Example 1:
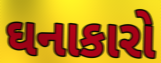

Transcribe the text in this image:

ઘનાકારો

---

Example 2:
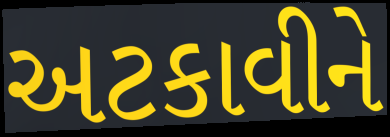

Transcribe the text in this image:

અટકાવીને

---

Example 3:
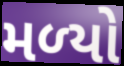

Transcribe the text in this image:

મળ્‍યો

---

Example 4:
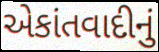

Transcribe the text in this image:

એકાંતવાદીનું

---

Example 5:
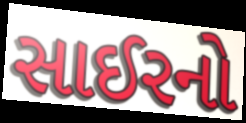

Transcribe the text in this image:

સાઈરનો